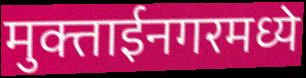
मुक्ताईनगरमध्ये